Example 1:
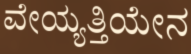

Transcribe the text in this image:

ವೇಯ್ಯತ್ತಿಯೇನ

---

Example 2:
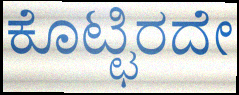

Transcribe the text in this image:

ಕೊಟ್ಟಿರದೇ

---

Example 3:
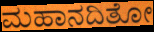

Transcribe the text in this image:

ಮಹಾನದಿತೋ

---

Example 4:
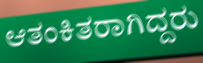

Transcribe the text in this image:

ಆತಂಕಿತರಾಗಿದ್ದರು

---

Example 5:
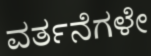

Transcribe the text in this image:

ವರ್ತನೆಗಳೇ